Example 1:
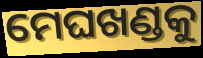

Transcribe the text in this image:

ମେଘଖଣ୍ଡକୁ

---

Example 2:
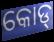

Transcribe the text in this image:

କୋଡ୍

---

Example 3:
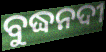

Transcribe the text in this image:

ବୁଦ୍ଧନଦୀ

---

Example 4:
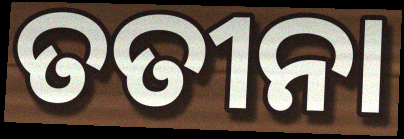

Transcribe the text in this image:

ତତୀନା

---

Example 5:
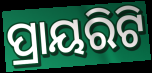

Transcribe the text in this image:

ପ୍ରାୟରିଟି